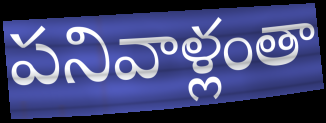
పనివాళ్లంతా